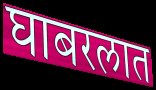
घाबरलात